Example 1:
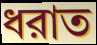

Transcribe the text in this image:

ধরাত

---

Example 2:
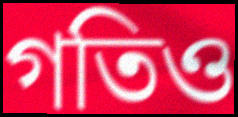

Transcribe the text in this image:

গতিও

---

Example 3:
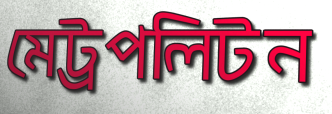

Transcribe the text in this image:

মেট্রপলিটন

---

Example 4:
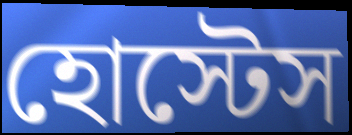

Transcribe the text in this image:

হোস্টেস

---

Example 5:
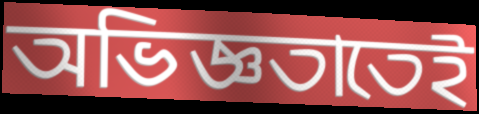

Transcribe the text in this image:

অভিজ্ঞতাতেই